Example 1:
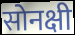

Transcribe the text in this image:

सोनक्षी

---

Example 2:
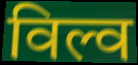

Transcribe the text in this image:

विल्व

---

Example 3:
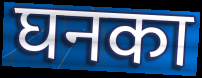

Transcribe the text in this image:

घनका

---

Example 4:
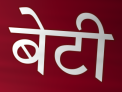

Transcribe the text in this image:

बेटी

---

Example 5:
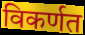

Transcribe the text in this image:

विकर्णत